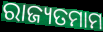
ରାଜ୍ୟତମାମ